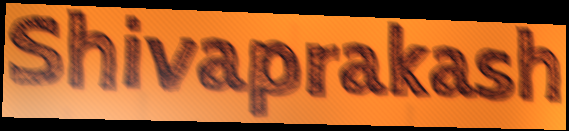
Shivaprakash